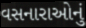
વસનારાઓનું